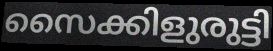
സൈക്കിളുരുട്ടി